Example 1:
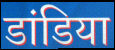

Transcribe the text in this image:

डांडिया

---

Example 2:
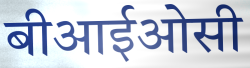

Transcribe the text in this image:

बीआईओसी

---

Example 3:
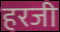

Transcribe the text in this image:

हरजी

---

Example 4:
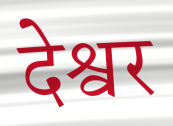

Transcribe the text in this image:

देश्वर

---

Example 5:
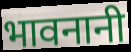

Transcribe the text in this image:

भावनानी